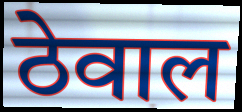
ठेवाल